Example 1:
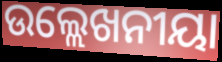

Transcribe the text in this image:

ଉଲ୍ଲେଖନୀୟା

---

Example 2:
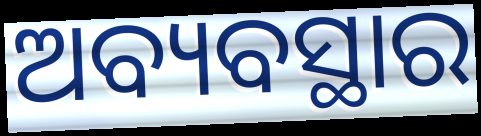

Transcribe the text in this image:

ଅବ୍ୟବସ୍ଥାର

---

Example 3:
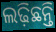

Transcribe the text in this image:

ଲଢ଼ିଛନ୍ତି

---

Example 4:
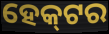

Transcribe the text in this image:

ହେକ୍‌ଟର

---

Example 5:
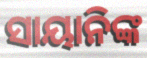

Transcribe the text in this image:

ସାୟାନିଙ୍କ